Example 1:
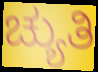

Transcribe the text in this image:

ಚ್ಯುತಿ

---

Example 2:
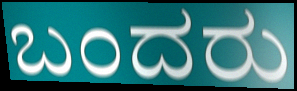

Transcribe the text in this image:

ಬಂದರು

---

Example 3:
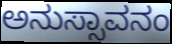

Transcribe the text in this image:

ಅನುಸ್ಸಾವನಂ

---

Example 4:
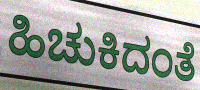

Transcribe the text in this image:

ಹಿಚುಕಿದಂತೆ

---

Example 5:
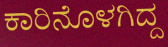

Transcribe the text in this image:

ಕಾರಿನೊಳಗಿದ್ದ